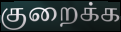
குறைக்க